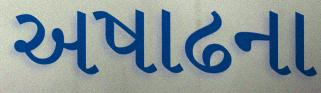
અષાઢના